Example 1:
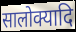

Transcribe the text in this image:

सालोक्यादि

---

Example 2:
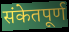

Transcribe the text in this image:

संकेतपूर्ण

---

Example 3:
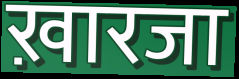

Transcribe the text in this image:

ख़ारजा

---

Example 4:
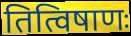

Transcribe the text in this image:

तित्विषाणः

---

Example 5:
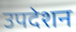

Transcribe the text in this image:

उपदेशन